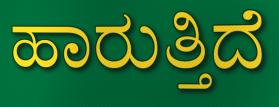
ಹಾರುತ್ತಿದೆ